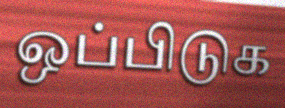
ஒப்பிடுக